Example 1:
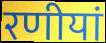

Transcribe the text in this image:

रणीयां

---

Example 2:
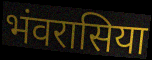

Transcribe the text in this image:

भंवरासिया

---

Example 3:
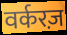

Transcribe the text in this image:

वर्करज़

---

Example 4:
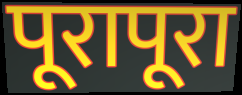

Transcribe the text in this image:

पूरापूरा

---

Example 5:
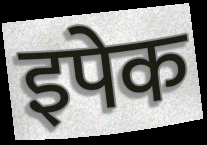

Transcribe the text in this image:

इपेक